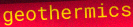
geothermics